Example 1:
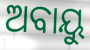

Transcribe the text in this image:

ଅବାୟୁ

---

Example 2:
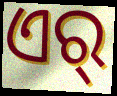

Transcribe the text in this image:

ଏର୍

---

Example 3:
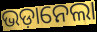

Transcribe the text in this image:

ଭଡ଼ାନେଲା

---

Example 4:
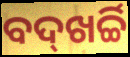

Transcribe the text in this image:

ବଦ୍‌ଖର୍ଚ୍ଚି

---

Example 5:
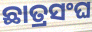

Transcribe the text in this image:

ଛାତ୍ରସଂଘ